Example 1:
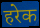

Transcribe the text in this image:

हरेक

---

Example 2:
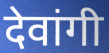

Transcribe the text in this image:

देवांगी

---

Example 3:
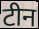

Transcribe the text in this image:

टीन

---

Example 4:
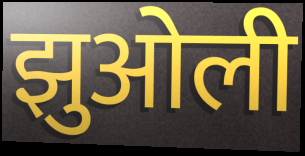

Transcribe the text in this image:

झुओली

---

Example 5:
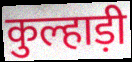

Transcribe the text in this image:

कुल्‍हाड़ी